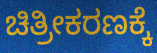
ಚಿತ್ರೀಕರಣಕ್ಕೆ